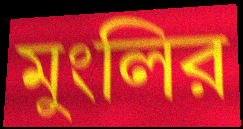
মুংলির